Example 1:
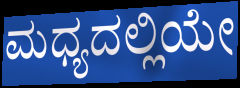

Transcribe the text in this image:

ಮಧ್ಯದಲ್ಲಿಯೇ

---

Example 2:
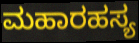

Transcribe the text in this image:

ಮಹಾರಹಸ್ಯ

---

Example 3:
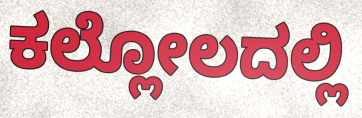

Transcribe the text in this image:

ಕಲ್ಲೋಲದಲ್ಲಿ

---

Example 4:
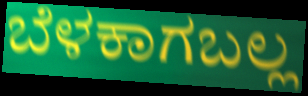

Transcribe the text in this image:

ಬೆಳಕಾಗಬಲ್ಲ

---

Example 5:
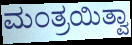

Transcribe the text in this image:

ಮಂತ್ರಯಿತ್ವಾ